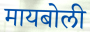
मायबोली